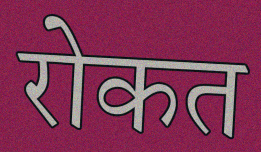
रोकत